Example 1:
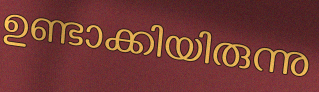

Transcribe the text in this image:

ഉണ്ടാക്കിയിരുന്നു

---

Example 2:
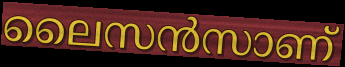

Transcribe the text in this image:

ലൈസൻസാണ്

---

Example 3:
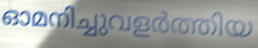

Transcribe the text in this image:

ഓമനിച്ചുവളർത്തിയ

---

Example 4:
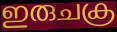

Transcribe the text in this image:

ഇരുചക്ര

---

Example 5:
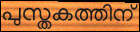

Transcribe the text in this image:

പുസ്തകത്തിന്